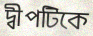
দ্বীপটিকে